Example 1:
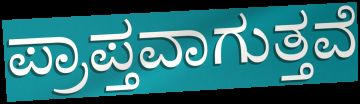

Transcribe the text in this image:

ಪ್ರಾಪ್ತವಾಗುತ್ತವೆ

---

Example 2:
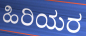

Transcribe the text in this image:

ಹಿರಿಯರ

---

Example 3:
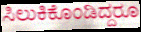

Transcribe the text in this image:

ಸಿಲುಕಿಕೊಂಡಿದ್ದರೂ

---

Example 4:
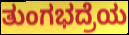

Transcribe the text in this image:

ತುಂಗಭದ್ರೆಯ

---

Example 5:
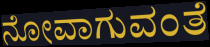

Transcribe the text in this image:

ನೋವಾಗುವಂತೆ